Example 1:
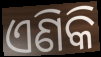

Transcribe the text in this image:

ଏଣିକି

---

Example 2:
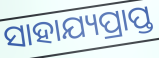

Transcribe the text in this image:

ସାହାଯ୍ୟପ୍ରାପ୍ତ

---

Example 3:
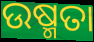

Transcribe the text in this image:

ଉଷ୍ମତା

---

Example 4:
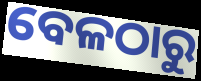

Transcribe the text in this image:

ବେଳଠାରୁ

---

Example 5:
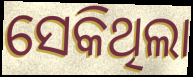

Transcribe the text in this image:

ସେକିଥିଲା